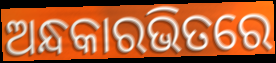
ଅନ୍ଧକାରଭିତରେ